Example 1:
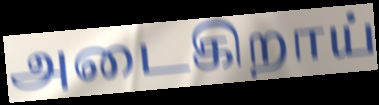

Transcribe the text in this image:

அடைகிறாய்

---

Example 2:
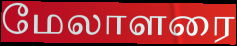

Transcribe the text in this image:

மேலாளரை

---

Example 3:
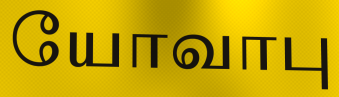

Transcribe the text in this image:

யோவாபு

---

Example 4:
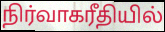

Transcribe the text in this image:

நிர்வாகரீதியில்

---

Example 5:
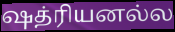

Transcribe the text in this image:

ஷத்ரியனல்ல